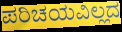
ಪರಿಚಯವಿಲ್ಲದ